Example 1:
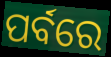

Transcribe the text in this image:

ପର୍ବରେ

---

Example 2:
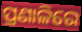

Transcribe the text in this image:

ପ୍ରଣାଳିରେ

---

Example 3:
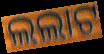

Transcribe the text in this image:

ଲଲାଟ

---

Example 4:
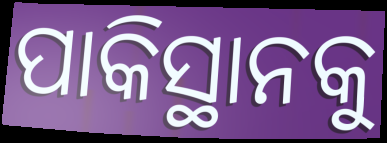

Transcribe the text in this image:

ପାକିସ୍ଥାନକୁ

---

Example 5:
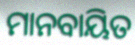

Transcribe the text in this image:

ମାନବାୟିତ